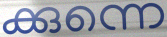
ക്കുന്നെ